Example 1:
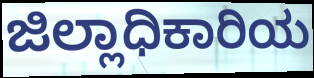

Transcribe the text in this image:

ಜಿಲ್ಲಾಧಿಕಾರಿಯ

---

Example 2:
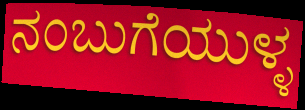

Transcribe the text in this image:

ನಂಬುಗೆಯುಳ್ಳ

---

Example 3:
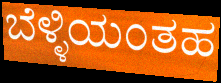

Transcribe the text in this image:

ಬೆಳ್ಳಿಯಂತಹ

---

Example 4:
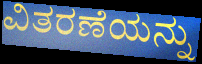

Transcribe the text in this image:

ವಿತರಣೆಯನ್ನು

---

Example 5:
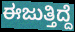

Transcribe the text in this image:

ಈಜುತ್ತಿದ್ದೆ